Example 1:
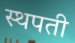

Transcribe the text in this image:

स्थपती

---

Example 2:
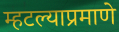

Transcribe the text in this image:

म्हटल्याप्रमाणे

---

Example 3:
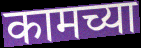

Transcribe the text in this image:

कामच्या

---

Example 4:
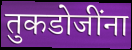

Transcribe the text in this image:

तुकडोजींना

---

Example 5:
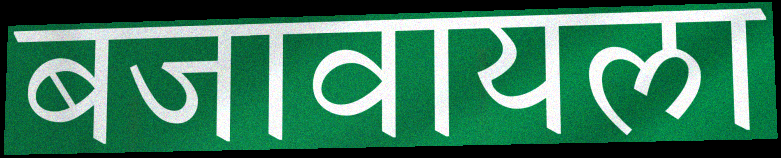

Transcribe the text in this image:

बजावायला